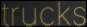
trucks